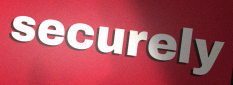
securely